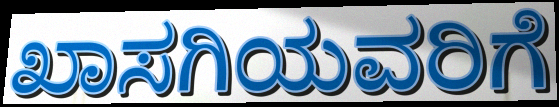
ಖಾಸಗಿಯವರಿಗೆ